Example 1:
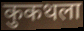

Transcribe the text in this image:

कुकथला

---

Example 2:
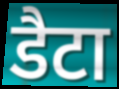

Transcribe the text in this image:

डैटा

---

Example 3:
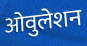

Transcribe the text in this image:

ओवुलेशन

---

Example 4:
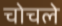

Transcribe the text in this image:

चोचले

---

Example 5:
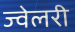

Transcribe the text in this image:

ज्वेलरी